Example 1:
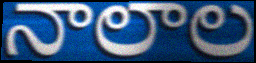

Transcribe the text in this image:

నాలాల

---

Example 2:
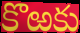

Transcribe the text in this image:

కొఱకు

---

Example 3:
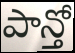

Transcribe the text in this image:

పాన్తో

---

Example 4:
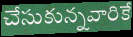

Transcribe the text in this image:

చేసుకున్నవారికే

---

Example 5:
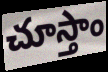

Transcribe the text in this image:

చూస్తాం